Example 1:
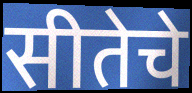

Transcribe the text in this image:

सीतेचे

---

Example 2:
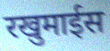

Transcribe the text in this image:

रखुमाईस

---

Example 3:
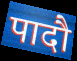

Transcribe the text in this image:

पादौ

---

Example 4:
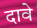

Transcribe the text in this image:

दावे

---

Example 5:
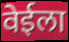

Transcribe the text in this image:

वेईला